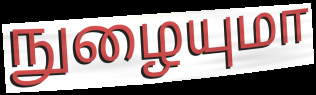
நுழையுமா